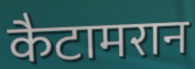
कैटामरान